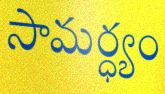
సామర్ధ్యం